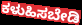
ಕಳುಹಿಸಬೇಡಿ